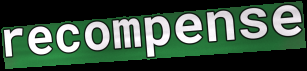
recompense